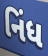
નિંધ